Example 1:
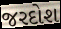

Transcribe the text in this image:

જરદોશ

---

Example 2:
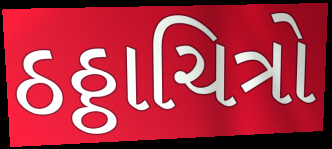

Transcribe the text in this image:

ઠઠ્ઠાચિત્રો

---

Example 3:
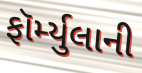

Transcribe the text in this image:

ફૉર્મ્યુલાની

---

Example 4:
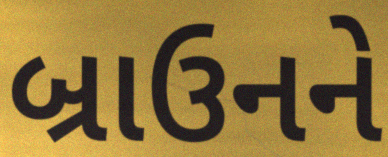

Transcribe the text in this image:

બ્રાઉનને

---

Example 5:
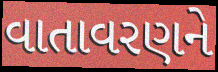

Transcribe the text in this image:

વાતાવરણને